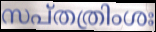
സപ്തത്രിംശഃ